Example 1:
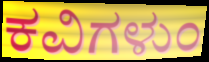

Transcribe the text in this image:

ಕವಿಗಳುಂ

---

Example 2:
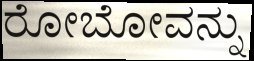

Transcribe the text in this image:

ರೋಬೋವನ್ನು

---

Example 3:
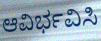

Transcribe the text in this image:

ಆವಿರ್ಭವಿಸಿ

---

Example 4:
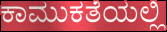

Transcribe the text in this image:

ಕಾಮುಕತೆಯಲ್ಲಿ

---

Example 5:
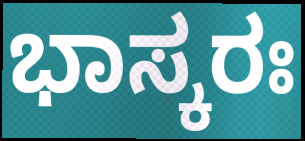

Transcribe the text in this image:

ಭಾಸ್ಕರಃ